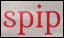
spip